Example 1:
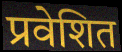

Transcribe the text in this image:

प्रवेशित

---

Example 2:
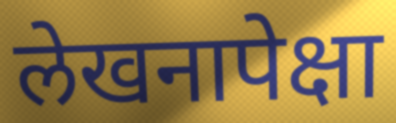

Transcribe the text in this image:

लेखनापेक्षा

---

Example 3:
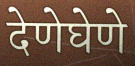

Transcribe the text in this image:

देणेघेणे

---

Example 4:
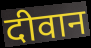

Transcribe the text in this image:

दीवान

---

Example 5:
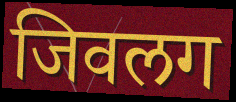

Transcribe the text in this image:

जिवलग